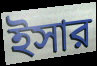
ইসার